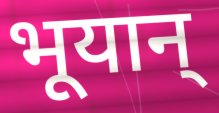
भूयान्